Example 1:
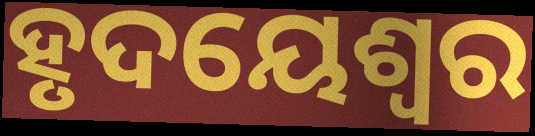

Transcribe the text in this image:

ହୃଦୟେଶ୍ୱର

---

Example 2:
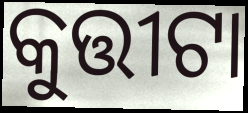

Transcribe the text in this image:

କୁତ୍ତୀଟା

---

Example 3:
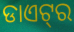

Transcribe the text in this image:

ଡାଏଟ୍‌ର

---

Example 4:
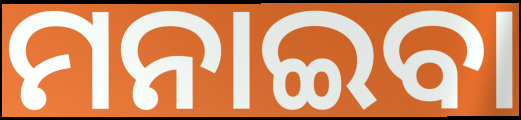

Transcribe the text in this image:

ମନାଇବା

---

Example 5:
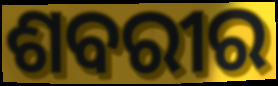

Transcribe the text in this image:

ଶବରୀର